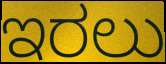
ಇರಲು